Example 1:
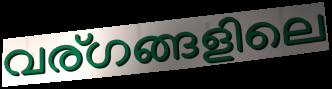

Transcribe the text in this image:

വര്ഗങ്ങളിലെ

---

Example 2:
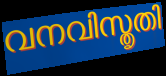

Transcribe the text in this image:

വനവിസ്തൃതി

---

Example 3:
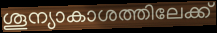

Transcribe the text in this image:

ശൂന്യാകാശത്തിലേക്ക്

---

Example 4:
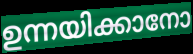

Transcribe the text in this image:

ഉന്നയിക്കാനോ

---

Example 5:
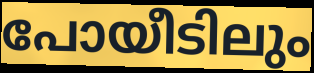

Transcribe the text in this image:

പോയീടിലും